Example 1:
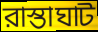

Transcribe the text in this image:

রাস্তাঘাট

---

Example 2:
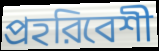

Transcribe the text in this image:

প্রহরিবেশী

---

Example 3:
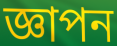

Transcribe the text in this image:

জ্ঞাপন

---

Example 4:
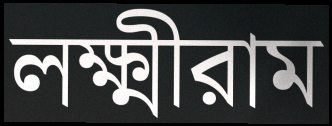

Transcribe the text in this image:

লক্ষ্মীরাম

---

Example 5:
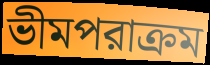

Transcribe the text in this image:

ভীমপরাক্রম